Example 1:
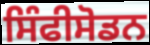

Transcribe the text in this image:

ਸਿੰਫੀਸੋਡਨ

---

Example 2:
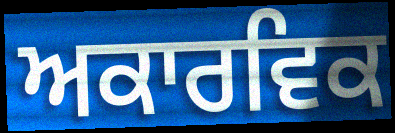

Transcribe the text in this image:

ਅਕਾਰਵਿਕ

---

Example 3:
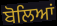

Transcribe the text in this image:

ਬੋਲਿਆਂ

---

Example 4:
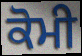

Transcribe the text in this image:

ਕੋਮੀ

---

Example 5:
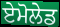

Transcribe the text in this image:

ਏਮੋਲੇਡ